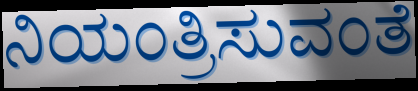
ನಿಯಂತ್ರಿಸುವಂತೆ